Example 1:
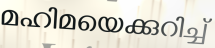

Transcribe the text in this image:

മഹിമയെക്കുറിച്ച്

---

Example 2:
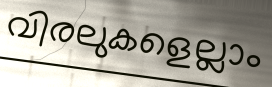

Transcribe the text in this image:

വിരലുകളെല്ലാം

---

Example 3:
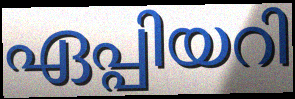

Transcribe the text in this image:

ഏപ്പിയറി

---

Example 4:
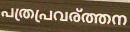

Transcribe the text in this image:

പത്രപ്രവര്ത്തന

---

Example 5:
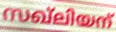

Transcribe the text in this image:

സഖ്ലിയന്